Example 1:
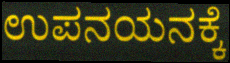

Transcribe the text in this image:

ಉಪನಯನಕ್ಕೆ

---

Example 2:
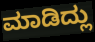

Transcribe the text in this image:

ಮಾಡಿದ್ಲು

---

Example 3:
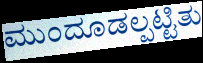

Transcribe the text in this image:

ಮುಂದೂಡಲ್ಪಟ್ಟಿತು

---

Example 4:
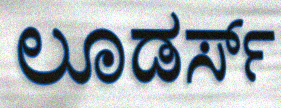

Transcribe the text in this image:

ಲೂಡರ್ಸ್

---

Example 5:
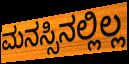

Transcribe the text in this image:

ಮನಸ್ಸಿನಲ್ಲಿಲ್ಲ